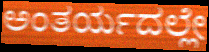
ಅಂತರ್ಯದಲ್ಲೇ